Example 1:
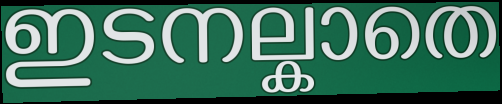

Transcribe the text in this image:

ഇടനല്കാതെ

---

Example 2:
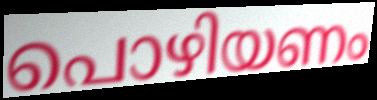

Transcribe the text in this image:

പൊഴിയണം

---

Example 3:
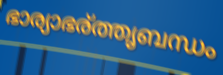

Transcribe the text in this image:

ഭാര്യാഭര്ത്തൃബന്ധം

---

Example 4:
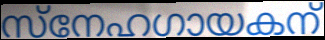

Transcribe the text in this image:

സ്നേഹഗായകന്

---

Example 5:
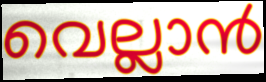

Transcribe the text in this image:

വെല്ലാൻ